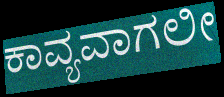
ಕಾವ್ಯವಾಗಲೀ